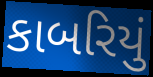
કાબરિયું